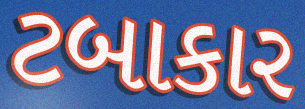
ટબાકાર